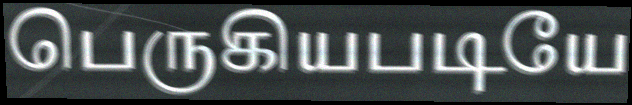
பெருகியபடியே